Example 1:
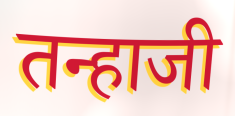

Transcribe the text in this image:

तन्हाजी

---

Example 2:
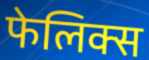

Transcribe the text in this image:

फेलिक्स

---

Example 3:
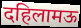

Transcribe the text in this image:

दहिलामऊ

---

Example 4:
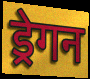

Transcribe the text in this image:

ड्रेगन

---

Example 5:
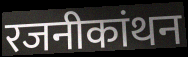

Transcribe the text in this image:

रजनीकांथन